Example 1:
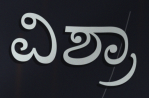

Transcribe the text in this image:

ವಿಶ್ರಾ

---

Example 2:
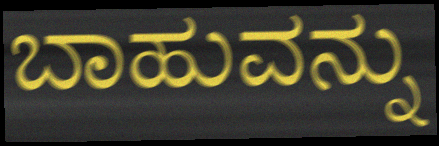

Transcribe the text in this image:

ಬಾಹುವನ್ನು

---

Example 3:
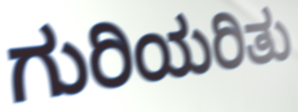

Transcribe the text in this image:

ಗುರಿಯರಿತು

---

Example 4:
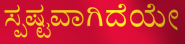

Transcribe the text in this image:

ಸ್ಪಷ್ಟವಾಗಿದೆಯೇ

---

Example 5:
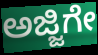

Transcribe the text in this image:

ಅಜ್ಜಿಗೇ